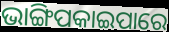
ଭାଙ୍ଗିପକାଇପାରେ